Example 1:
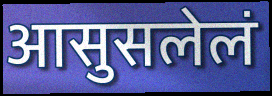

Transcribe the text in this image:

आसुसलेलं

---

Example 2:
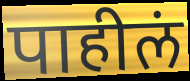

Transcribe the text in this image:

पाहीलं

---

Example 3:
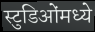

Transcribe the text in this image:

स्टुडिओंमध्ये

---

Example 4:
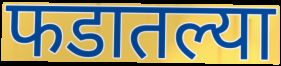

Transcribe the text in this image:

फडातल्या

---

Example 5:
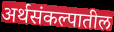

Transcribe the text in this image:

अर्थसंकल्पातील